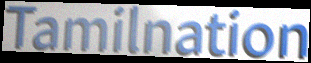
Tamilnation